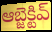
ఆబ్జెక్టివ్